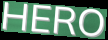
HERO